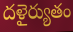
దళైర్యుతం